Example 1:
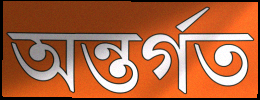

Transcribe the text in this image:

অন্তর্গত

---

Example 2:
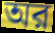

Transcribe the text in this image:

অর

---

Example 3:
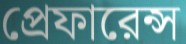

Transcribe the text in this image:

প্রেফারেন্স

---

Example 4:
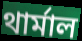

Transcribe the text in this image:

থার্মাল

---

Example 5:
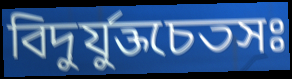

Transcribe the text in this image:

বিদুর্যুক্তচেতসঃ